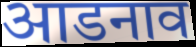
आडनाव